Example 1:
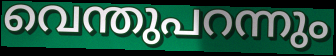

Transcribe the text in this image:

വെന്തുപറന്നും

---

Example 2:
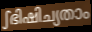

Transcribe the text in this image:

ഽഭിഷിച്യതാം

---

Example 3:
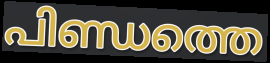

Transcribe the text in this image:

പിണ്ഡത്തെ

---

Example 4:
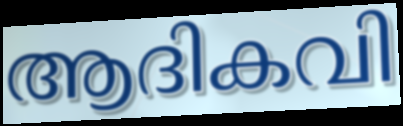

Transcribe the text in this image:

ആദികവി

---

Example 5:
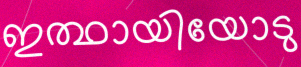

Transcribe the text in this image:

ഇത്ഥായിയോടു